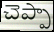
చెప్పా